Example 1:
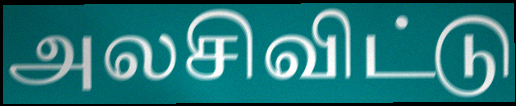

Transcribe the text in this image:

அலசிவிட்டு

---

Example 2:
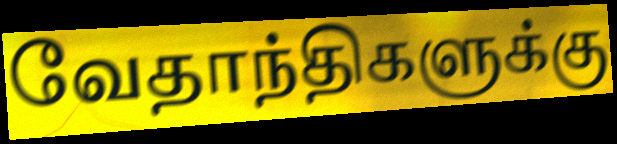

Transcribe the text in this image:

வேதாந்திகளுக்கு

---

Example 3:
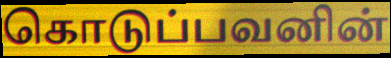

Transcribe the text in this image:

கொடுப்பவனின்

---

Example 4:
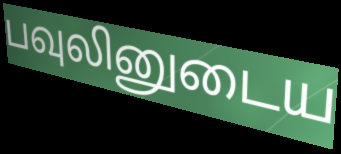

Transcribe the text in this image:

பவுலினுடைய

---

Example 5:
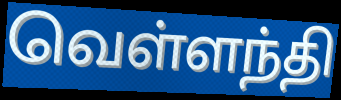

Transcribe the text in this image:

வெள்ளந்தி